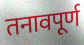
तनावपूर्ण